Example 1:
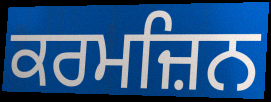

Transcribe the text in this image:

ਕਰਮਜ਼ਿਨ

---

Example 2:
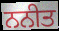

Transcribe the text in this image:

ਨਨੀਤ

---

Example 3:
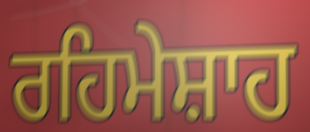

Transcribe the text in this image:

ਰਹਿਮੇਸ਼ਾਹ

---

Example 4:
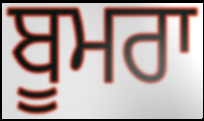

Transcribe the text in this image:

ਬੂਮਰਾ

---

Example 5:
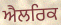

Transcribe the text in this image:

ਐਲਰਿਕ